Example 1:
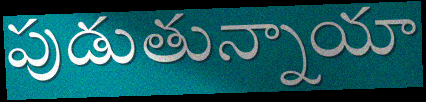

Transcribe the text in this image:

పుడుతున్నాయా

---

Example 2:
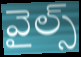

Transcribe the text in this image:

వైల్స్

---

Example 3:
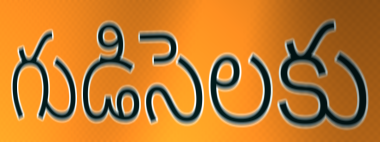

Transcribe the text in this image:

గుడిసెలకు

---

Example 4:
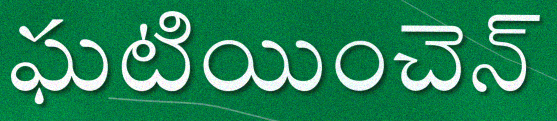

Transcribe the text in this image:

ఘటియించెన్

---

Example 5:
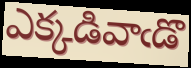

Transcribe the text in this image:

ఎక్కడివాఁడొ